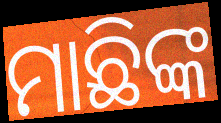
ମାଛିଙ୍କ